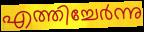
എത്തിച്ചേർന്നു